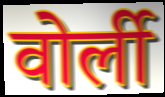
वोर्ली